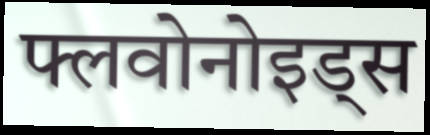
फ्लवोनोइड्स